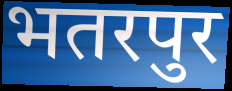
भतरपुर